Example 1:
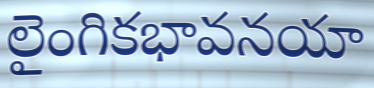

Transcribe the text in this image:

లైంగికభావనయా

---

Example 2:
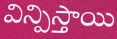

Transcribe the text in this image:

విన్పిస్తాయి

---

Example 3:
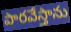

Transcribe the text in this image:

పారవేస్తాను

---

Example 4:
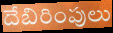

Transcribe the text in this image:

దేబిరింపులు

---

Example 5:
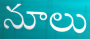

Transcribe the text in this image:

నూలు